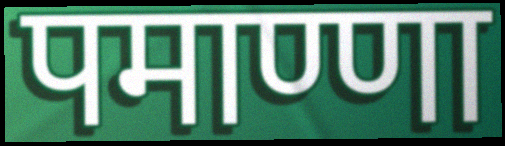
पमाण्णा